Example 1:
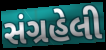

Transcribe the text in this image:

સંગ્રહેલી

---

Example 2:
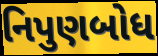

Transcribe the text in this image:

નિપુણબોધ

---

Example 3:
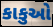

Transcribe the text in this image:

કાકુઓ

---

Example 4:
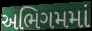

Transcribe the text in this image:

અભિગમમાં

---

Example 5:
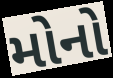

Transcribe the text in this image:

મોનો